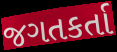
જગતકર્તા